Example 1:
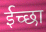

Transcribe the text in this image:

ईच्छा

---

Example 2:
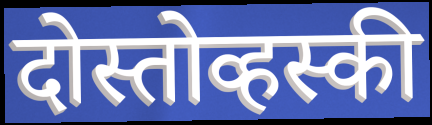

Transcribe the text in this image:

दोस्तोव्हस्की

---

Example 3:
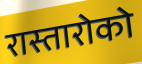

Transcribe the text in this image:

रास्तारोको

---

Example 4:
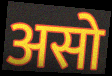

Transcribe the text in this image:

असो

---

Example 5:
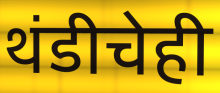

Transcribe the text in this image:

थंडीचेही